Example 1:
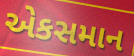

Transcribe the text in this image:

એકસમાન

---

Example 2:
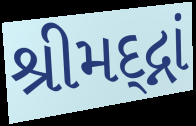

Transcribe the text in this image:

શ્રીમદ્દ્નાં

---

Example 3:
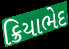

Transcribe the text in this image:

ક્રિયાભેદ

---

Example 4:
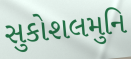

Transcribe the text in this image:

સુકોશલમુનિ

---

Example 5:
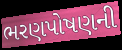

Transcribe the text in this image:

ભરણપોષણની